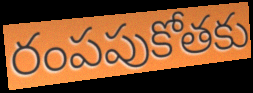
రంపపుకోతకు